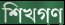
শিখগণ